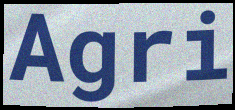
Agri